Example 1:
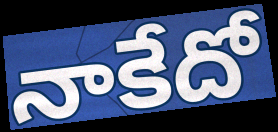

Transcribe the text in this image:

నాకేదో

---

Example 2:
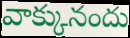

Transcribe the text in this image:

వాక్కునందు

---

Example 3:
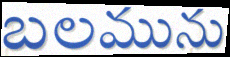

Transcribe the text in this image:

బలమును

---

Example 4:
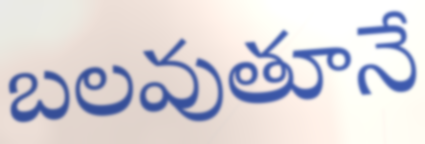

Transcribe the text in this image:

బలవుతూనే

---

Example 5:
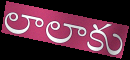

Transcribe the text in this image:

లాలాకు